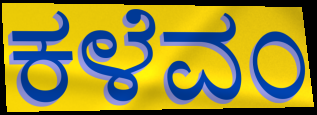
ಕಳೆವಂ